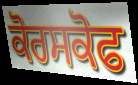
ਕੋਰਸਕੋਫ